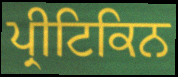
ਪ੍ਰੀਟਿਕਿਨ